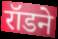
रॉडने